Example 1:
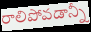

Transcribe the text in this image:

రాలిపోవడాన్నీ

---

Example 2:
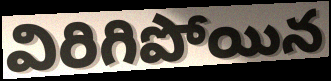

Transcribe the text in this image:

విరిగిపోయిన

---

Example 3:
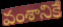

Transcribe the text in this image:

వంశానికే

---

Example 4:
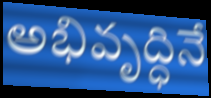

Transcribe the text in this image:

అభివృద్ధినే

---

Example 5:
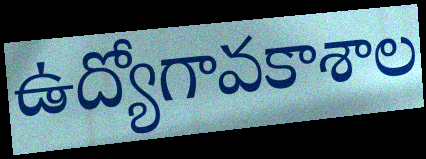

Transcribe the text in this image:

ఉద్యోగావకాశాల